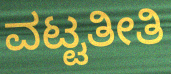
ವಟ್ಟತೀತಿ